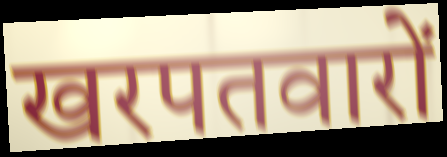
खरपतवारों